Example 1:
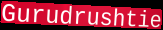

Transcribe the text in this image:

Gurudrushtie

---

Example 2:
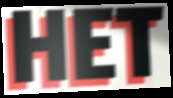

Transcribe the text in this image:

HET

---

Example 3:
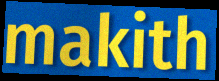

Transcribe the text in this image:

makith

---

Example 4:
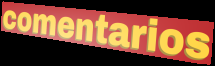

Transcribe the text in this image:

comentarios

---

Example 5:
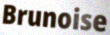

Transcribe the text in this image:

Brunoise